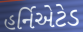
હર્નિએટેડ